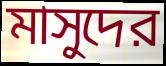
মাসুদের